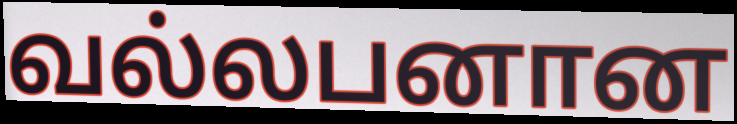
வல்லபனான